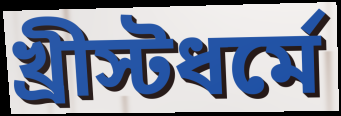
খ্রীস্টধর্মে